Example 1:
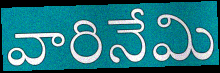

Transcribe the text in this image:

వారినేమి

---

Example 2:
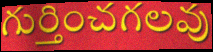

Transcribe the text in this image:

గుర్తించగలవు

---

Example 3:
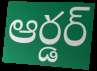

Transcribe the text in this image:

ఆర్డర్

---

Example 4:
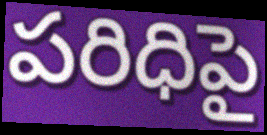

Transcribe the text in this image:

పరిధిపై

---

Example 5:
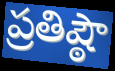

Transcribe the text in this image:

ప్రతిష్ఠౌ